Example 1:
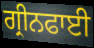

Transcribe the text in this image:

ਗ੍ਰੀਨਫਾਈ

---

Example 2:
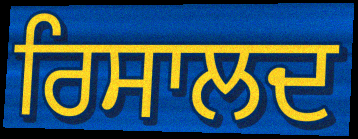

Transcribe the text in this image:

ਰਿਸਾਲਦ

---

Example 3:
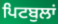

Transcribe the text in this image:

ਪਿਟਬੁਲਾਂ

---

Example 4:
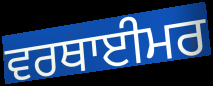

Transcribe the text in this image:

ਵਰਥਾਈਮਰ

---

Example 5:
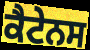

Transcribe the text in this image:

ਕੈਟੇਨਸ